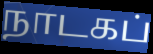
நாடகப்